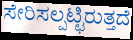
ಸೇರಿಸಲ್ಪಟ್ಟಿರುತ್ತದೆ